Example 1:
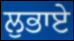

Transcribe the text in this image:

ਲੁਭਾਏ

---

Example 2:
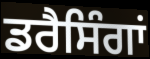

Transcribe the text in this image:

ਡਰੈਸਿੰਗਾਂ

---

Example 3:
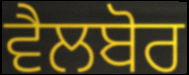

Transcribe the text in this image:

ਵੈਲਬੋਰ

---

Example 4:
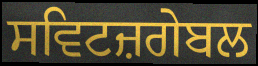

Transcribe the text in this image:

ਸਵਿਟਜ਼ਗੇਬਲ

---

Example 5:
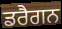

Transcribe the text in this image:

ਡਰੈਗਨ